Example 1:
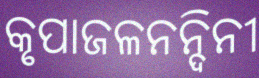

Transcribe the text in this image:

କୃପାଜଳନନ୍ଦିନୀ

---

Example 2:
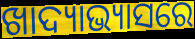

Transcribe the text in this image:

ଖାଦ୍ୟାଭ୍ୟାସରେ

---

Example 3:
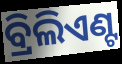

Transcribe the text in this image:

ବ୍ରିଲିଏଣ୍ଟ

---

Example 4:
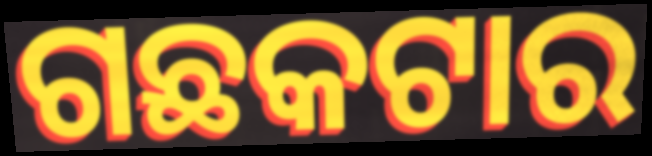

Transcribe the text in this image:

ଗଛକଟାର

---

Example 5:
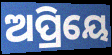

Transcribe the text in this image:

ଅପ୍ରିୟେ